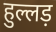
हुल्लड़